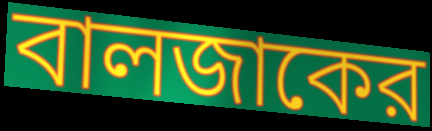
বালজাকের